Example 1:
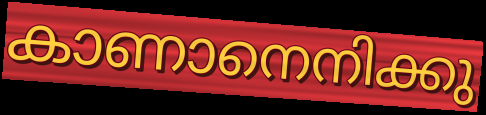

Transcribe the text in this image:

കാണാനെനിക്കു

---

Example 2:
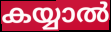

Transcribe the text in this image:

കയ്യാൽ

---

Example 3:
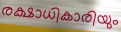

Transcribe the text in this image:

രക്ഷാധികാരിയും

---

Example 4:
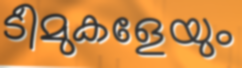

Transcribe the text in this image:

ടീമുകളേയും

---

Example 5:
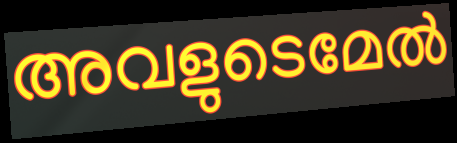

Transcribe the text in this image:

അവളുടെമേൽ